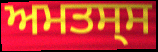
ਅਮਤਸ੍ਸ